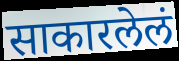
साकारलेलं